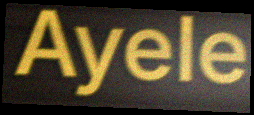
Ayele